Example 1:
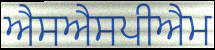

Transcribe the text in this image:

ਐਸਐਸਪੀਐਮ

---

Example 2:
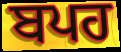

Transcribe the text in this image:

ਬਪਹ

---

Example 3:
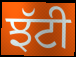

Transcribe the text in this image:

ਝੱਟੀ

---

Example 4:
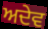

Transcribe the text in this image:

ਅਦੇਵ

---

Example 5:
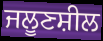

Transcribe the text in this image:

ਜਲੂਣਸ਼ੀਲ